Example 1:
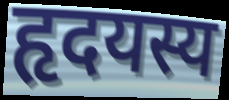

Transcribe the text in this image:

हृदयस्य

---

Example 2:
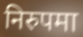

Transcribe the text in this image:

निरुपमा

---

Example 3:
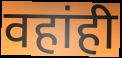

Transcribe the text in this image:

वहांही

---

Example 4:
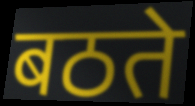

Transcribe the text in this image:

बठते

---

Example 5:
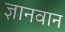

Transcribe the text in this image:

ज्ञानवान